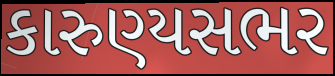
કારુણ્યસભર